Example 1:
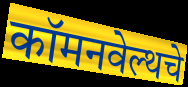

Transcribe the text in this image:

कॉमनवेल्थचे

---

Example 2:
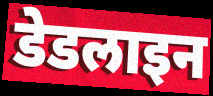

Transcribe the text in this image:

डेडलाइन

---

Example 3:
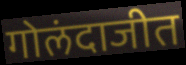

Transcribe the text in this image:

गोलंदाजीत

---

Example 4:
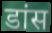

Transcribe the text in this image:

डांस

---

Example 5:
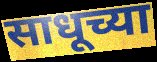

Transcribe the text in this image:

साधूच्या